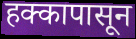
हक्कापासून